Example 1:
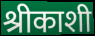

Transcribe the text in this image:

श्रीकाशी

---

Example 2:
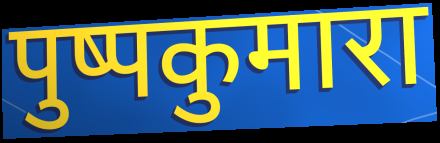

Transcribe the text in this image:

पुष्पकुमारा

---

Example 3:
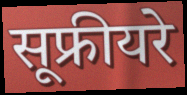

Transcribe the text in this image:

सूफ्रीयरे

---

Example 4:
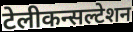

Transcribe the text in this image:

टेलीकन्सल्टेशन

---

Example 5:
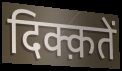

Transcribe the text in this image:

दिक्क़तें